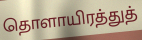
தொளாயிரத்துத்